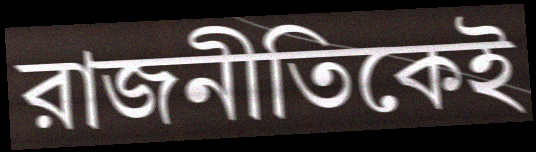
রাজনীতিকেই